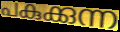
പകുക്കുന്ന